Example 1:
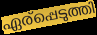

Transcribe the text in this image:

ഏര്പ്പെടുത്തി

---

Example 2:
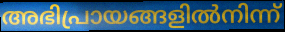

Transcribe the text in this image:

അഭിപ്രായങ്ങളിൽനിന്ന്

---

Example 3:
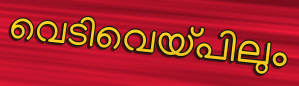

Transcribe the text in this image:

വെടിവെയ്പിലും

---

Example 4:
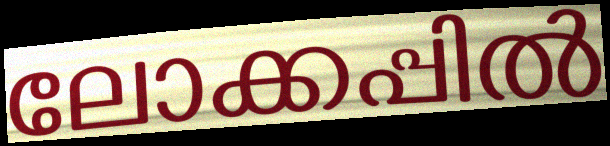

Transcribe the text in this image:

ലോക്കപ്പിൽ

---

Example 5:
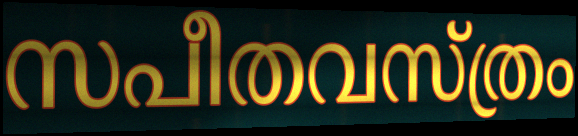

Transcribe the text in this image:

സപീതവസ്ത്രം